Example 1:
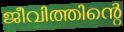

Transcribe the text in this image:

ജീവിത്തിന്റെ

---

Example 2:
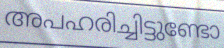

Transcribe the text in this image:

അപഹരിച്ചിട്ടുണ്ടോ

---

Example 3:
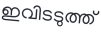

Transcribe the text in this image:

ഇവിടടുത്ത്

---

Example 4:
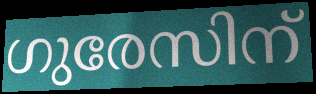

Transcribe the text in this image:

ഗുരേസിന്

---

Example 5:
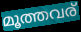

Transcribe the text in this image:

മൂത്തവര്